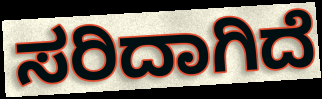
ಸರಿದಾಗಿದೆ